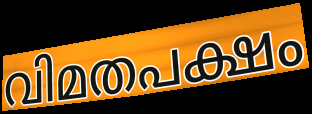
വിമതപക്ഷം